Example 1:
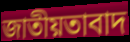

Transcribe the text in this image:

জাতীয়তাবাদ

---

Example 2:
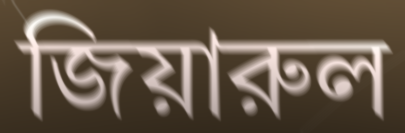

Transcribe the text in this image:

জিয়ারুল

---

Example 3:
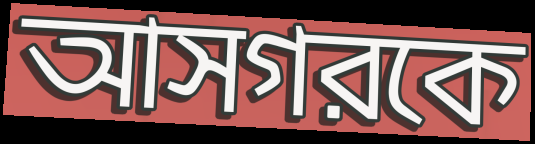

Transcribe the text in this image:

আসগরকে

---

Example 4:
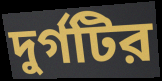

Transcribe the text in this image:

দুর্গটির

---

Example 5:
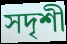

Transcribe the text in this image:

সদৃশী